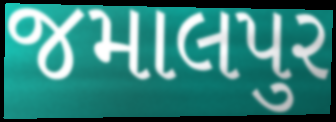
જમાલપુર